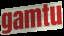
gamtu